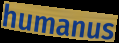
humanus